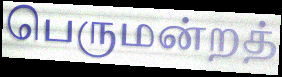
பெருமன்றத்